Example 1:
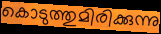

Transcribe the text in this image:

കൊടുത്തുമിരിക്കുന്നു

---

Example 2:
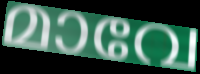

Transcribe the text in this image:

മാവേ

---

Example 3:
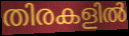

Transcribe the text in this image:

തിരകളിൽ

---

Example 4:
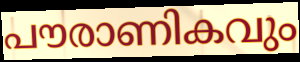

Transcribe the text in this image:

പൗരാണികവും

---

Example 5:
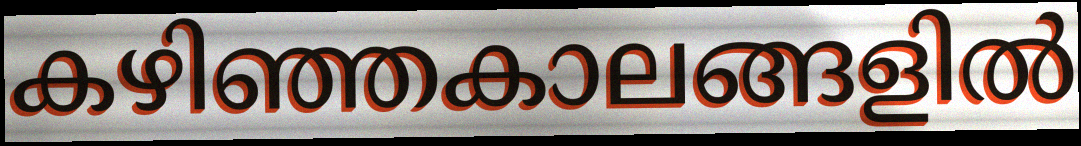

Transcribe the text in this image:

കഴിഞ്ഞകാലങ്ങളിൽ